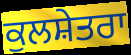
ਕੁਲਸ਼ੇਤਰਾ